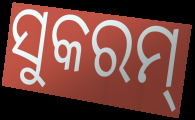
ସୁକରମ୍